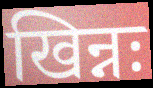
खिन्नः